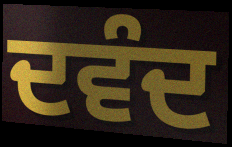
ਦਵੰਦ